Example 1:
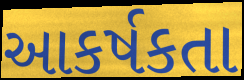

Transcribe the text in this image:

આકર્ષકતા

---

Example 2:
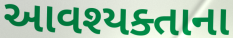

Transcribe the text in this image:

આવશ્યક્તાના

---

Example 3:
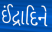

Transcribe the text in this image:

ઈંદ્રાદિને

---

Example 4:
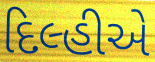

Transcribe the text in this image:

દિલ્હીએ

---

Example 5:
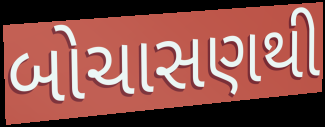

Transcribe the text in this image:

બોચાસણથી